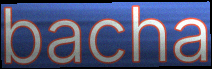
bacha